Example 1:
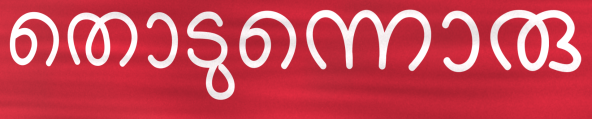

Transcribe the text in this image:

തൊടുന്നൊരു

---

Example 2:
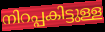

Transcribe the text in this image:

നിറപ്പകിട്ടുള്ള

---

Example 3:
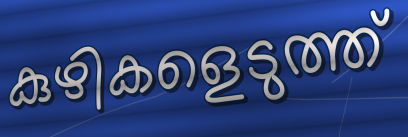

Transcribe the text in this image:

കുഴികളെടുത്ത്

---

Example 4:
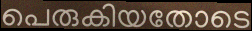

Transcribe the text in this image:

പെരുകിയതോടെ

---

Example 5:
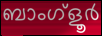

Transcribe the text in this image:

ബാംഗ്ളൂർ